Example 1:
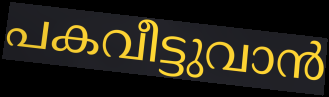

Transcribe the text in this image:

പകവീട്ടുവാൻ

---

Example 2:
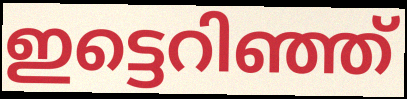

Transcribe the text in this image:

ഇട്ടെറിഞ്ഞ്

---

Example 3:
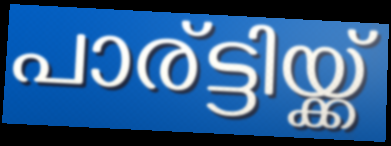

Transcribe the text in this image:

പാര്ട്ടിയ്ക്ക്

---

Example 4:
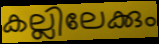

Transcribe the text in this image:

കല്ലിലേക്കും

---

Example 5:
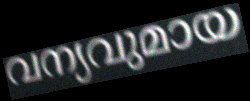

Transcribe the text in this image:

വന്യവുമായ